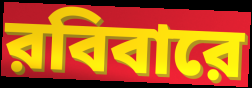
রবিবারে